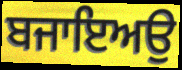
ਬਜਾਇਅਉ